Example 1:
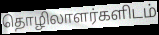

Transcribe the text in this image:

தொழிலாளர்களிடம்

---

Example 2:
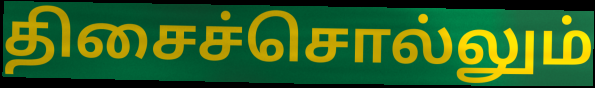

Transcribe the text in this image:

திசைச்சொல்லும்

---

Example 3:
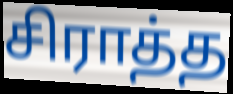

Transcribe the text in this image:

சிராத்த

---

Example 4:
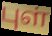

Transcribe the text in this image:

புள்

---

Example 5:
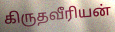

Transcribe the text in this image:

கிருதவீரியன்